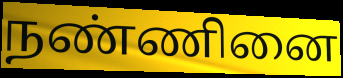
நண்ணினை